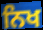
ਨਿਖ